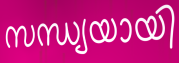
സന്ധ്യയായി